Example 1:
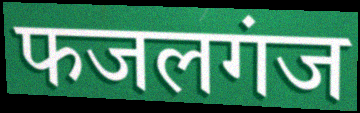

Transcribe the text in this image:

फजलगंज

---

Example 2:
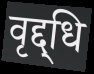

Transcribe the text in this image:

वृद्द्धि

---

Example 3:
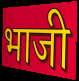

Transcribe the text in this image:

भाजी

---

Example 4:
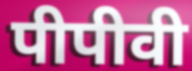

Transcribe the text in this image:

पीपीवी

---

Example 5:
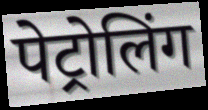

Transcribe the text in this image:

पेट्रोलिंग